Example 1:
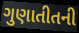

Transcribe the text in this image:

ગુણાતીતની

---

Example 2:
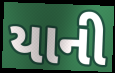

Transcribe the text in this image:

યાની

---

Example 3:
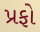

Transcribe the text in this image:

પ્રફો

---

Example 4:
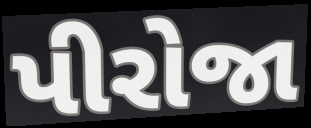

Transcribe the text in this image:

પીરોજા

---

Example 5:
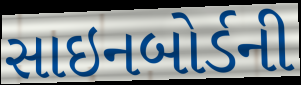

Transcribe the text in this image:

સાઇનબોર્ડની